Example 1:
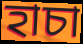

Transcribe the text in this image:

হাচা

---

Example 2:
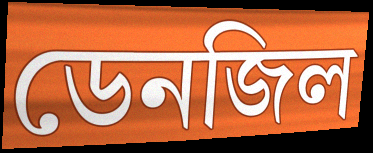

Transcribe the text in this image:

ডেনজিল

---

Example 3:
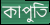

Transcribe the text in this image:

কাপুতি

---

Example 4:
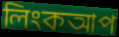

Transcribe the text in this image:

লিংকআপ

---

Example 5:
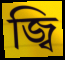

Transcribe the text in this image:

জ্বি